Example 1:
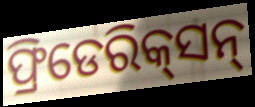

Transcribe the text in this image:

ଫ୍ରିଡେରିକ୍‌ସନ୍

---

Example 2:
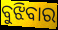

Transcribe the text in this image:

ବୁଝିବାର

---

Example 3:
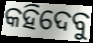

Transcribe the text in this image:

କହିଦେବୁ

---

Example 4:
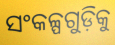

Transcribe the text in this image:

ସଂକଳ୍ପଗୁଡ଼ିକୁ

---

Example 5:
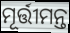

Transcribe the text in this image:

ମୂର୍ତ୍ତୀମନ୍ତ